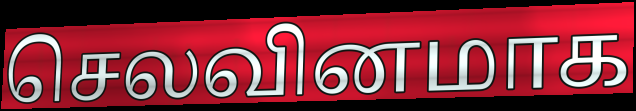
செலவினமாக